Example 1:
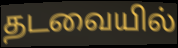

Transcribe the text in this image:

தடவையில்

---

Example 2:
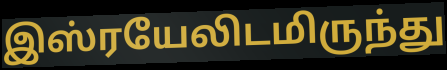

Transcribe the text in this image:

இஸ்ரயேலிடமிருந்து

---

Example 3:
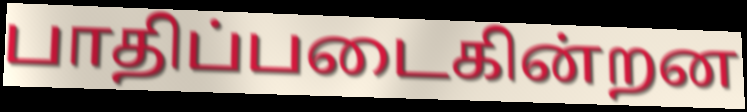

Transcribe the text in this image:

பாதிப்படைகின்றன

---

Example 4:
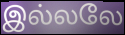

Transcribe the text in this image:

இல்லலே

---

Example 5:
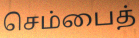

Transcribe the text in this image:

செம்பைத்